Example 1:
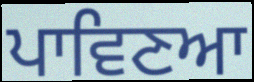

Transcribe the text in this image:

ਪਾਵਿਣਆ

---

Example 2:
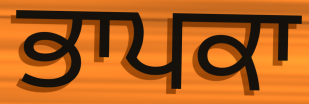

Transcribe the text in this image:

ਭਾਪਕਾ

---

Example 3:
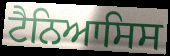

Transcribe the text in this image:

ਟੈਨਿਆਸਿਸ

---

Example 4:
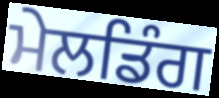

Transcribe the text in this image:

ਮੇਲਡਿੰਗ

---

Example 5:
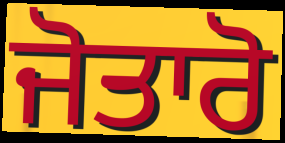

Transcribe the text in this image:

ਜੋਤਾਰੋ